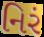
નિરં